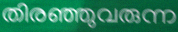
തിരഞ്ഞുവരുന്ന